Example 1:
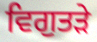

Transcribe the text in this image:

ਵਿਗੁਤੜੇ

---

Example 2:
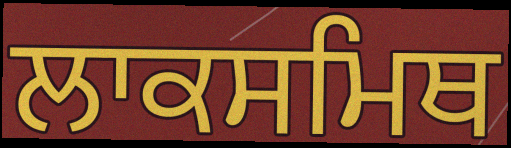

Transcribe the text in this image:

ਲਾਕਸਮਿਥ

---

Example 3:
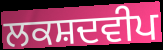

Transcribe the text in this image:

ਲਕਸ਼ਦਵੀਪ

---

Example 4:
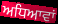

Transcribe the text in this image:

ਅਧਿਆਵਾਂ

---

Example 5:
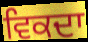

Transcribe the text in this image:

ਵਿਕਦਾ